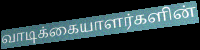
வாடிக்கையாளர்களின்